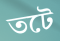
তটে